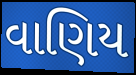
વાણિય